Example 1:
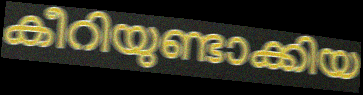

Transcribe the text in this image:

കീറിയുണ്ടാക്കിയ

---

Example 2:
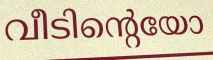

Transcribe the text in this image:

വീടിന്റെയോ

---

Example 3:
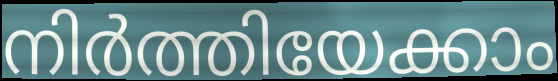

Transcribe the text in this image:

നിർത്തിയേക്കാം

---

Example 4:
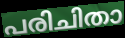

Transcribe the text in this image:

പരിചിതാ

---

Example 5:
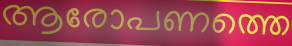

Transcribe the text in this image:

ആരോപണത്തെ